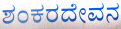
ಶಂಕರದೇವನ